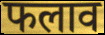
फलाव